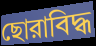
ছোরাবিদ্ধ